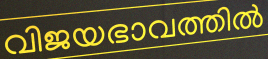
വിജയഭാവത്തിൽ